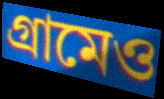
গ্রামেও